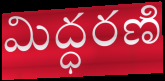
మిద్ధరణి